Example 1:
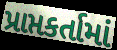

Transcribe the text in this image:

પ્રાપ્તકર્તામાં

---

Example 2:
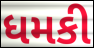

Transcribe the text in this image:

ધમકી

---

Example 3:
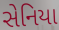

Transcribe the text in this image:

સેનિયા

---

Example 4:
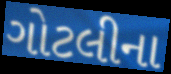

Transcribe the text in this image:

ગોટલીના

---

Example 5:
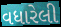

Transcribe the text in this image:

વધારેલી